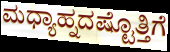
ಮಧ್ಯಾಹ್ನದಷ್ಟೊತ್ತಿಗೆ